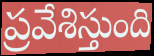
ప్రవేశిస్తుంది